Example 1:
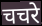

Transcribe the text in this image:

चचरे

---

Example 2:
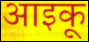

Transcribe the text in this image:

आइकू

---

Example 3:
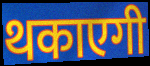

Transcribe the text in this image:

थकाएगी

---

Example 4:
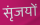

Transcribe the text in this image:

सृंजयों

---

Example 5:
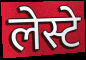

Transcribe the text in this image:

लेस्टे